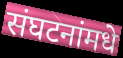
संघटनांमधे